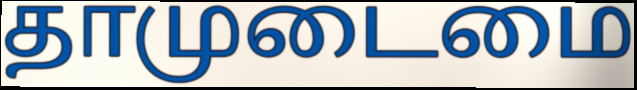
தாமுடைமை